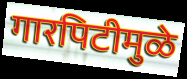
गारपिटीमुळे